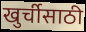
खुर्चीसाठी